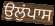
ਉਲੁਂਪਾਸ